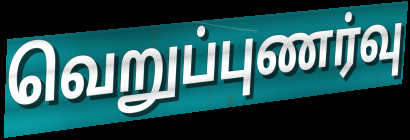
வெறுப்புணர்வு